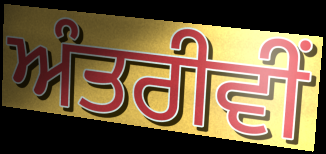
ਅੰਤਰੀਵੀਂ